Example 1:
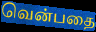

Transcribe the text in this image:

வென்பதை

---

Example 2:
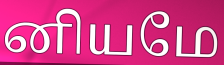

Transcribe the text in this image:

னியமே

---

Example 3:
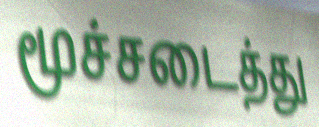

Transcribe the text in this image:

மூச்சடைத்து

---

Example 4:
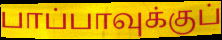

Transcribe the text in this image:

பாப்பாவுக்குப்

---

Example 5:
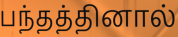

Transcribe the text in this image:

பந்தத்தினால்